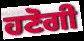
ਹਣੋਗੀ